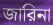
জারিনা